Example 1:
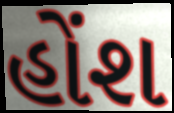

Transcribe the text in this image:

હોંશ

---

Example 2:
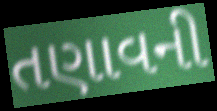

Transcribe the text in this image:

તણાવની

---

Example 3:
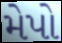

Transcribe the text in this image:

મેપો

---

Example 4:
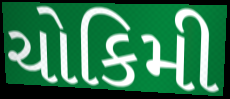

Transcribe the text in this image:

ચોકિમી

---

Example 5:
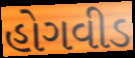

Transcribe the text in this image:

હોગવીડ